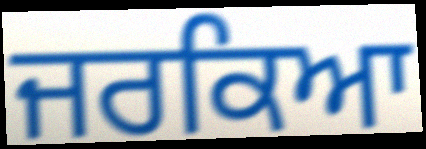
ਜਰਕਿਆ